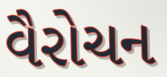
વૈરોચન